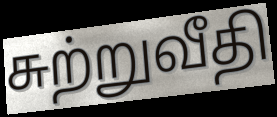
சுற்றுவீதி